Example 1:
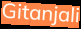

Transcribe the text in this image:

Gitanjali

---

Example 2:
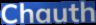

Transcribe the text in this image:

Chauth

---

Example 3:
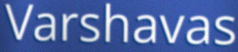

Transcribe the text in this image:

Varshavas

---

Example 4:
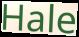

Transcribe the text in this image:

Hale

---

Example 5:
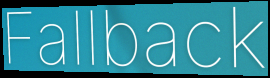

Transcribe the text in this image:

Fallback